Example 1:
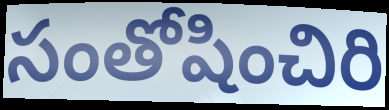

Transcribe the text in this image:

సంతోషించిరి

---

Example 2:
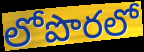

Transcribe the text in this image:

లోపొరలో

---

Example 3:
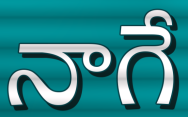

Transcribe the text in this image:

నాగే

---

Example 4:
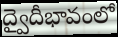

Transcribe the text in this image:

ద్వైదీభావంలో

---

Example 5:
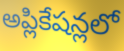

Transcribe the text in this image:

అప్లికేషన్లలో